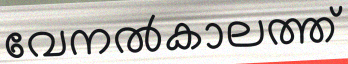
വേനൽകാലത്ത്